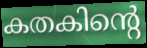
കതകിന്റെ